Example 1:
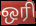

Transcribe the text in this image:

ஒரி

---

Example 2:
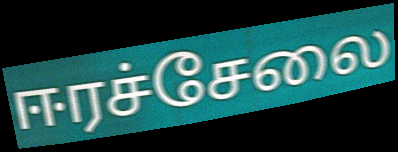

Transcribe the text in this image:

ஈரச்சேலை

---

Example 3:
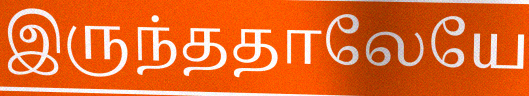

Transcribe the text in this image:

இருந்ததாலேயே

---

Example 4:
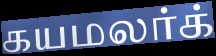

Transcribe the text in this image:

கயமலர்க்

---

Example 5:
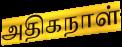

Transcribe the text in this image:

அதிகநாள்